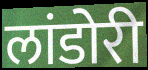
लांडोरी